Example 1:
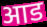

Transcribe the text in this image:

आड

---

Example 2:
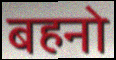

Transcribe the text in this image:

बहनो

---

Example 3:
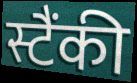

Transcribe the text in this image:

स्टैंकी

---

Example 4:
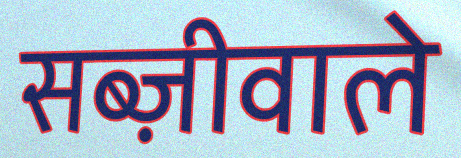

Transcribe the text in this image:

सब्ज़ीवाले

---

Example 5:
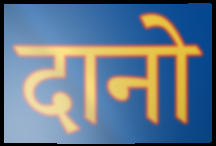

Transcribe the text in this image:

दानो